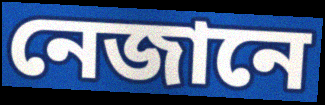
নেজানে